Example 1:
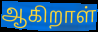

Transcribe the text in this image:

ஆகிறாள்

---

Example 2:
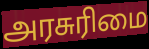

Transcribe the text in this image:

அரசுரிமை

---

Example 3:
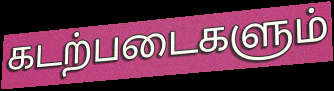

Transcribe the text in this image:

கடற்படைகளும்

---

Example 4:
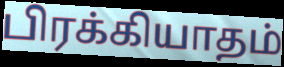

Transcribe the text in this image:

பிரக்கியாதம்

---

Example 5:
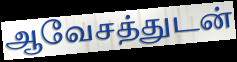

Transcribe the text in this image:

ஆவேசத்துடன்